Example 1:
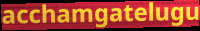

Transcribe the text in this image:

acchamgatelugu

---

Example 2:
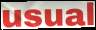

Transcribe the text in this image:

usual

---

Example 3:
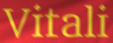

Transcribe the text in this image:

Vitali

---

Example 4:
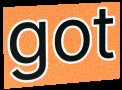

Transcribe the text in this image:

got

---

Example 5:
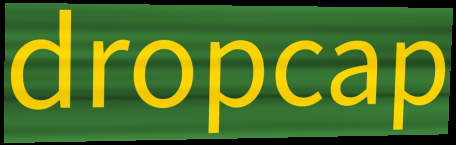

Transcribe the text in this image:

dropcap